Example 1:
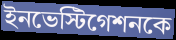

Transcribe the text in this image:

ইনভেস্টিগেশনকে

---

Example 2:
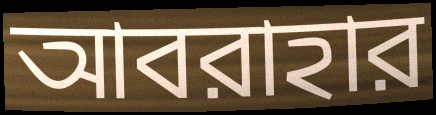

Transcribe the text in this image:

আবরাহার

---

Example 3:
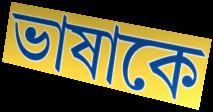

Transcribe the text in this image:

ভাষাকে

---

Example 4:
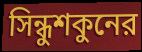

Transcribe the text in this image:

সিন্ধুশকুনের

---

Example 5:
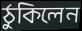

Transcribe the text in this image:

ঠুকিলেন